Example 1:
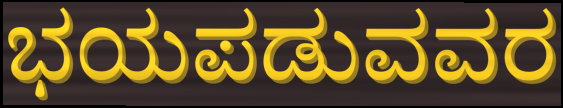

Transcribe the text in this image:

ಭಯಪಡುವವರ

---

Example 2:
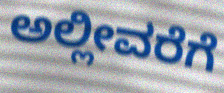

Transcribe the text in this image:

ಅಲ್ಲೀವರೆಗೆ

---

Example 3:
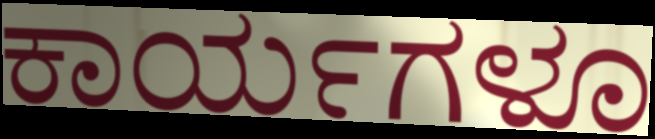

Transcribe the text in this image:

ಕಾರ್ಯಗಳೂ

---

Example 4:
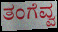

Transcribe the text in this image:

ತಂಗೆವ್ವ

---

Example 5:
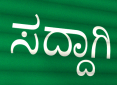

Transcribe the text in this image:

ಸದ್ದಾಗಿ